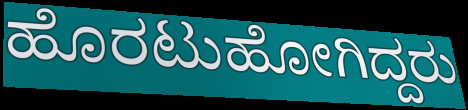
ಹೊರಟುಹೋಗಿದ್ದರು